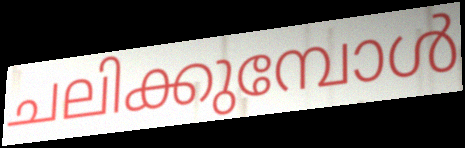
ചലിക്കുമ്പോൾ